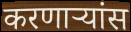
करणाऱ्यांस